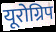
यूरोग्रिप